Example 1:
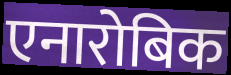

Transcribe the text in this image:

एनारोबिक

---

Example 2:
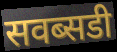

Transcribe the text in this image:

सवब्सडी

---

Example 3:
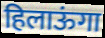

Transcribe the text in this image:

हिलाऊंगा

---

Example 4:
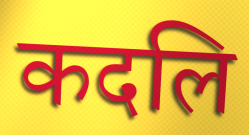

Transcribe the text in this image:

कदलि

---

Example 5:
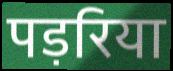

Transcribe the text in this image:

पड़रिया